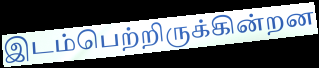
இடம்பெற்றிருக்கின்றன